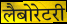
लैबोरेटरी